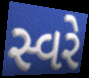
સ્વરે